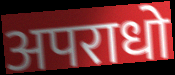
अपराधो